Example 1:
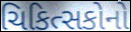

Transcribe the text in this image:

ચિકિત્સકોનો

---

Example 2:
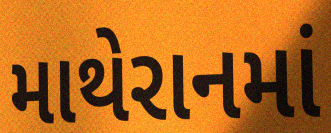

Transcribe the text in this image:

માથેરાનમાં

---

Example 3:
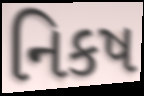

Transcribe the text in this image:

નિકષ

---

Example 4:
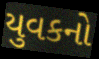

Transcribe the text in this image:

યુવકનો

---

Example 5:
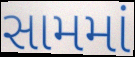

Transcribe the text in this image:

સામમાં